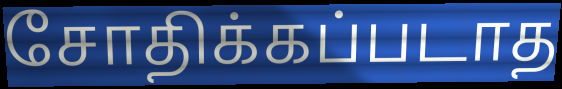
சோதிக்கப்படாத